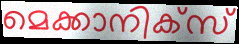
മെക്കാനിക്സ്